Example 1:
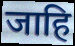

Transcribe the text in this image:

जाहि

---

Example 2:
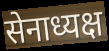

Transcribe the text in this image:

सेनाध्यक्ष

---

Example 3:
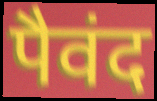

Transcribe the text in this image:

पैवंद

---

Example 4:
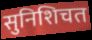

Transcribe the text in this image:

सुनिशिचत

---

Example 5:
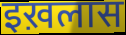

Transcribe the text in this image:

इख़लास